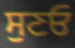
ਸੁਣਓ